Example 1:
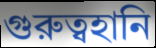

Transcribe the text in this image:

গুরুত্বহানি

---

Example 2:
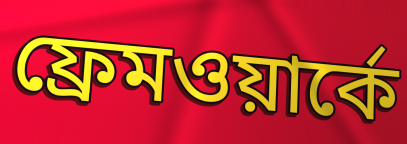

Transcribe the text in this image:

ফ্রেমওয়ার্কে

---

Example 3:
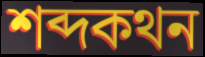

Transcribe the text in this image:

শব্দকথন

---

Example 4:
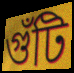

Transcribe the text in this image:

গুঁটি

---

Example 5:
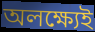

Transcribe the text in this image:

অলক্ষ্যেই